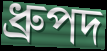
ধ্রুপদ